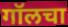
गॉलचा